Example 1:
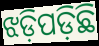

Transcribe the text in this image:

ଝଡ଼ିପଡ଼ିଛି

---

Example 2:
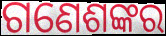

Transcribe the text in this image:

ଗଣେଶଙ୍କର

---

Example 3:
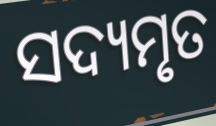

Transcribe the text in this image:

ସଦ୍ୟମୃତ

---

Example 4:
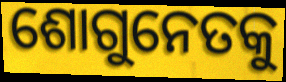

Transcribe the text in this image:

ଶୋଗୁନେତକୁ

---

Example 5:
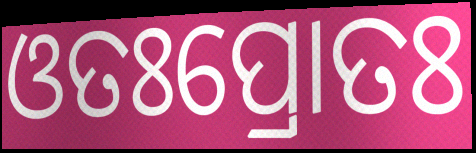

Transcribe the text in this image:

ଓତଃପ୍ରୋତଃ